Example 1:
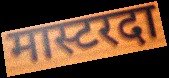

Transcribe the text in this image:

मास्टरदा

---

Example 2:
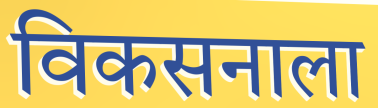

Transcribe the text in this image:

विकसनाला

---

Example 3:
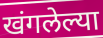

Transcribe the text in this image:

खंगलेल्या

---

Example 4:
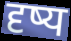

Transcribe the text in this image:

दृष्य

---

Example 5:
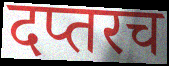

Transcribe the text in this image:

दप्तरच